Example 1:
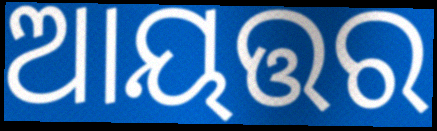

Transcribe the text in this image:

ଆୟତ୍ତର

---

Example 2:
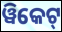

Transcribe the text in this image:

ୱିକେଟ୍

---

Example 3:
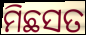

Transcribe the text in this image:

ମିଛସତ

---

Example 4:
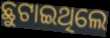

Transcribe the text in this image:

ଛୁଟାଇଥିଲେ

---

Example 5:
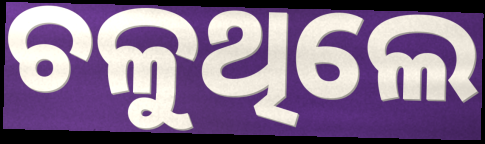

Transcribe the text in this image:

ଚଳୁଥିଲେ